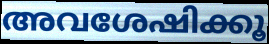
അവശേഷിക്കൂ